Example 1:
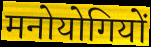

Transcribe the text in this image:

मनोयोगियों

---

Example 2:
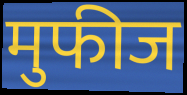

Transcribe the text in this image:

मुफीज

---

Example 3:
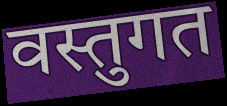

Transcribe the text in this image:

वस्तुगत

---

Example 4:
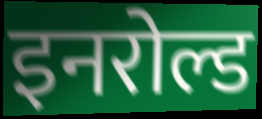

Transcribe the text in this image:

इनरोल्ड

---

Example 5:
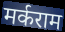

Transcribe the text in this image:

मर्कराम